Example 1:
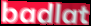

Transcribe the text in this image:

badlat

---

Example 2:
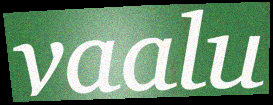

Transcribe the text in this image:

vaalu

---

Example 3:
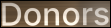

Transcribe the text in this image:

Donors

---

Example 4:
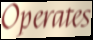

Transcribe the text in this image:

Operates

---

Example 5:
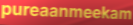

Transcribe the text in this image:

pureaanmeekam